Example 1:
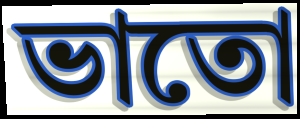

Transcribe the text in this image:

ভাতো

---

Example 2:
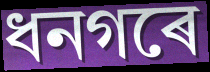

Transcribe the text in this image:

ধনগৰে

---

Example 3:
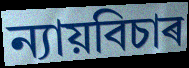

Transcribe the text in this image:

ন্যায়বিচাৰ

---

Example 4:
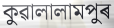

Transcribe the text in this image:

কুৱালালামপুৰ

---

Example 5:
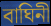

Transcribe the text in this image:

বাঘিনী